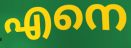
എനെ